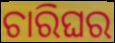
ଚାରିଘର